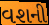
વશની